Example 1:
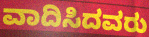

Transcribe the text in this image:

ವಾದಿಸಿದವರು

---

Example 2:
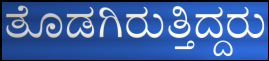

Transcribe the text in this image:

ತೊಡಗಿರುತ್ತಿದ್ದರು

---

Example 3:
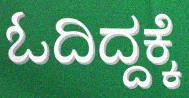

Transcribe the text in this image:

ಓದಿದ್ದಕ್ಕೆ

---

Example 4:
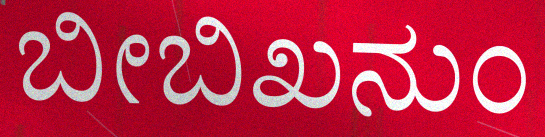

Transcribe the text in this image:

ಬೀಬಿಖನುಂ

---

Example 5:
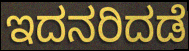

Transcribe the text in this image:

ಇದನರಿದಡೆ